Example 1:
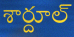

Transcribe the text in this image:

శార్దూల్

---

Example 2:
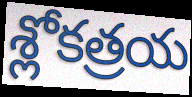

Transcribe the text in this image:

శ్లోకత్రయ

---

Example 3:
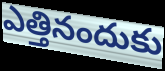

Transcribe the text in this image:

ఎత్తినందుకు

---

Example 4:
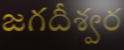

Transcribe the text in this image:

జగదీశ్వర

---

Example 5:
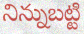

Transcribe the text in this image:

నిన్నుబట్టి